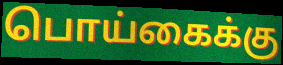
பொய்கைக்கு